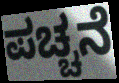
ಪಚ್ಚನೆ